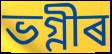
ভগ্নীৰ